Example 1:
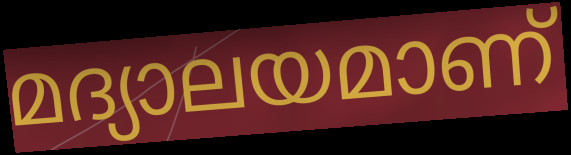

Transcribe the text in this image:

മദ്യാലയമാണ്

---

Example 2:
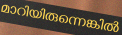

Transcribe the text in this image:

മാറിയിരുന്നെങ്കിൽ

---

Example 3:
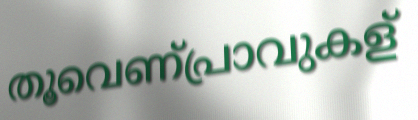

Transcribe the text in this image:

തൂവെണ്പ്രാവുകള്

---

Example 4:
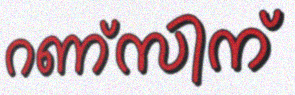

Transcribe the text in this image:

റണ്സിന്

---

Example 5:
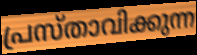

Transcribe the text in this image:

പ്രസ്താവിക്കുന്ന